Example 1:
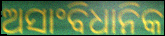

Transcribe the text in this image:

ଅସାଂବିଧାନିକ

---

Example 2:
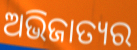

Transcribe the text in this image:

ଅଭିଜାତ୍ୟର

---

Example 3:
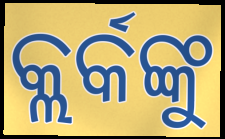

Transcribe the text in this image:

କ୍ଲର୍କଙ୍କୁ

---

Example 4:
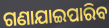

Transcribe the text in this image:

ଗଣାଯାଇପାରିବ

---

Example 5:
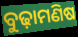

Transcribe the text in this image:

ବୁଢ଼ାମଣିଷ